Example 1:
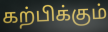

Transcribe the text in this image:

கற்பிக்கும்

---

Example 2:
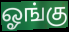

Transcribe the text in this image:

ஓங்கு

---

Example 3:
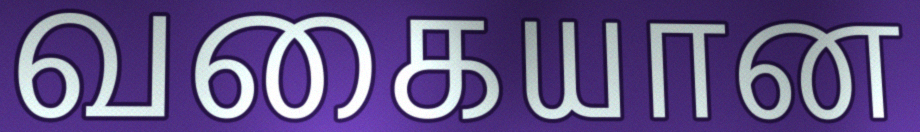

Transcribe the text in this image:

வகையான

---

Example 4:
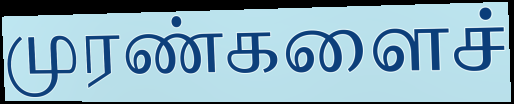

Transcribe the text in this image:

முரண்களைச்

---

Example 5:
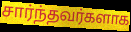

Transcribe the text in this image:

சார்ந்தவர்களாக